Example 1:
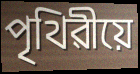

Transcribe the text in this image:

পৃথিৱীয়ে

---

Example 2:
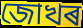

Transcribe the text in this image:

জোখৰ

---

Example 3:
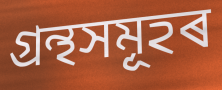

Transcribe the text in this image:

গ্ৰন্থসমূহৰ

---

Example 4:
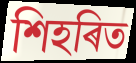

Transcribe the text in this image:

শিহৰিত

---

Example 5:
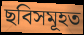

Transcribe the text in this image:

ছবিসমূহত